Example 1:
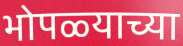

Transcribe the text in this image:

भोपळ्याच्या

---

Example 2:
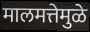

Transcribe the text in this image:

मालमत्तेमुळे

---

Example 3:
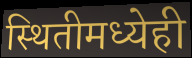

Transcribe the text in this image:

स्थितीमध्येही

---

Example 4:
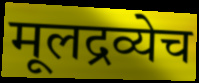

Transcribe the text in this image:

मूलद्रव्येच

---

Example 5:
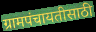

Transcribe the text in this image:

ग्रामपंचायतीसाठी